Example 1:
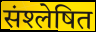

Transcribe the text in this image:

संश्लेषित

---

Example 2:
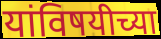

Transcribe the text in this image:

यांविषयीच्या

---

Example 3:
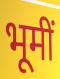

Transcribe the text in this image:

भूमीं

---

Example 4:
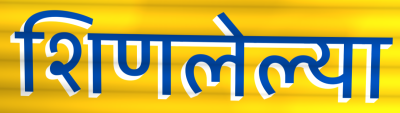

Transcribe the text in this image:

शिणलेल्या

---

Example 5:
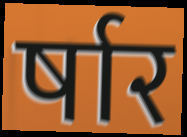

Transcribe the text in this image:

र्षार